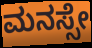
ಮನಸ್ಸೇ